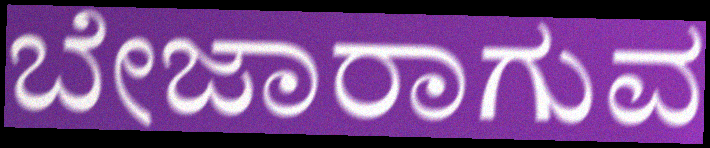
ಬೇಜಾರಾಗುವ